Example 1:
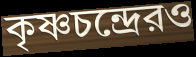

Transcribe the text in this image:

কৃষ্ণচন্দ্রেরও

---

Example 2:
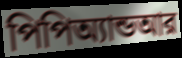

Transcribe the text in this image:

পিপিঅ্যান্ডআর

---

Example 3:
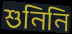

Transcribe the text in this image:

শুনিনি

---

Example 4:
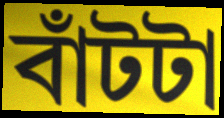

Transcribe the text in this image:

বাঁটটা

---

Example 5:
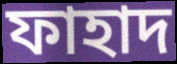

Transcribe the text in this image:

ফাহাদ